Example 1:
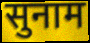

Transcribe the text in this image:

सुनाम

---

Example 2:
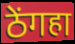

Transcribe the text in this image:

ठेंगहा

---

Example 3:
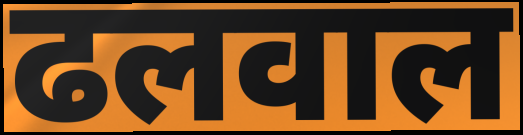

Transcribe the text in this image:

ढलवाल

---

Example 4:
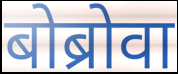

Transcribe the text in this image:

बोब्रोवा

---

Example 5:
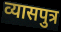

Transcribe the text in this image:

व्यासपुत्र